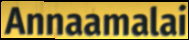
Annaamalai